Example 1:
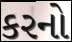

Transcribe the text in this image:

કરનો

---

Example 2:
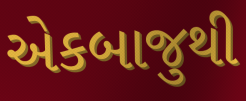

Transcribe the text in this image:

એકબાજુથી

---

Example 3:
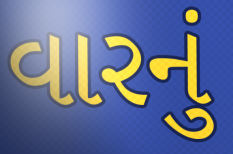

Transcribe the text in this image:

વારનું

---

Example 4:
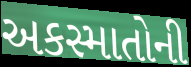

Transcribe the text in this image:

અકસ્માતોની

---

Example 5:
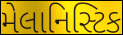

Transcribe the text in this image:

મેલાનિસ્ટિક